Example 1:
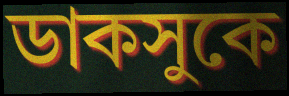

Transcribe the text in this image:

ডাকসুকে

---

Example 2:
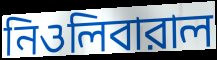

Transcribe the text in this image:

নিওলিবারাল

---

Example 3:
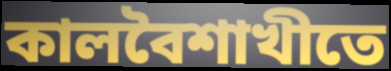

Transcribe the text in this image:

কালবৈশাখীতে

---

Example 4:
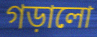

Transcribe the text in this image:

গড়ালো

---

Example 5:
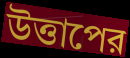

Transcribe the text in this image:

উত্তাপের